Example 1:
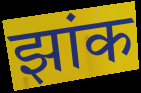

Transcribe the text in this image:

झांक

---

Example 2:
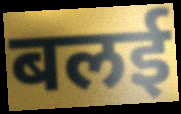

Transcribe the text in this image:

बलई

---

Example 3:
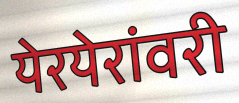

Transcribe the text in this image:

येरयेरांवरी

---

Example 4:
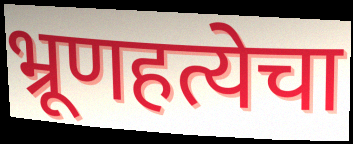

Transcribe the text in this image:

भ्रूणहत्येचा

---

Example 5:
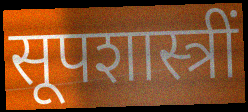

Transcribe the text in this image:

सूपशास्त्रीं